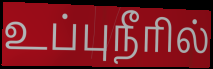
உப்புநீரில்